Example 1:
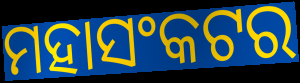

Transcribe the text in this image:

ମହାସଂକଟର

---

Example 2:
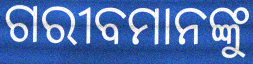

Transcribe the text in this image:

ଗରୀବମାନଙ୍କୁ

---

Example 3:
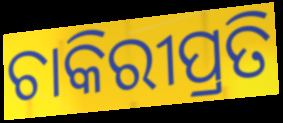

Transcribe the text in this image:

ଚାକିରୀପ୍ରତି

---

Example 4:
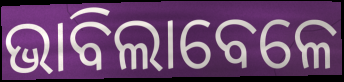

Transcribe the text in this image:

ଭାବିଲାବେଳେ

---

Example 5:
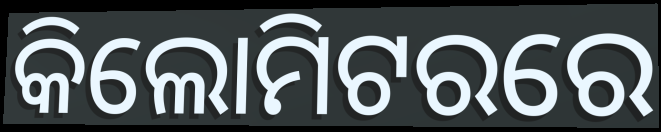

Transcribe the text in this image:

କିଲୋମିଟରରେ